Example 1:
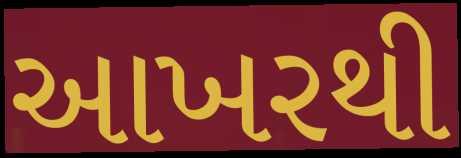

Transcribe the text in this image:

આખરથી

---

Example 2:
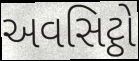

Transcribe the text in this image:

અવસિટ્ઠો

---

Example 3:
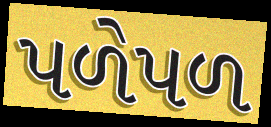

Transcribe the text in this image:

પળેપળ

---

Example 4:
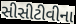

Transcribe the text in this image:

સીસીટીવીના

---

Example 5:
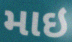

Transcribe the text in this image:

માઇ